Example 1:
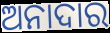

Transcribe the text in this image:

ଅନାଦାର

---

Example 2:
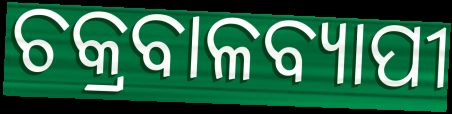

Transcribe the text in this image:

ଚକ୍ରବାଳବ୍ୟାପୀ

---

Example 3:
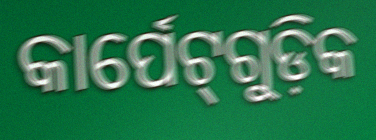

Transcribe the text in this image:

କାର୍ପେଟ୍‌ଗୁଡ଼ିକ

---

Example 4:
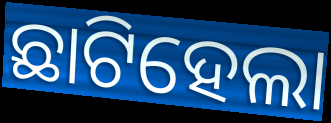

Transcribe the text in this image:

ଛାଟିହେଲା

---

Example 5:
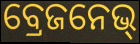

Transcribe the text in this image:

ବ୍ରେଜନେଭ୍